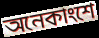
অনেকাংশে